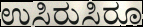
ಉಸಿರುಸಿರೂ